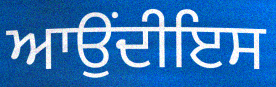
ਆਉਂਦੀਇਸ